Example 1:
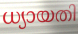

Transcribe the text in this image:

ധ്യായതി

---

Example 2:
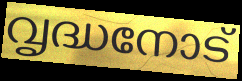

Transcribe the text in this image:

വൃദ്ധനോട്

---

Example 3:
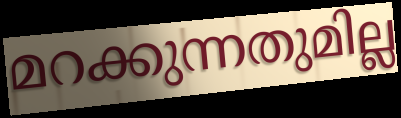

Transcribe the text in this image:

മറക്കുന്നതുമില്ല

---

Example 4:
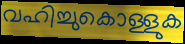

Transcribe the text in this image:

വഹിച്ചുകൊള്ളുക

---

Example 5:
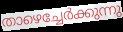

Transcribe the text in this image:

താഴെച്ചേർക്കുന്നു